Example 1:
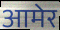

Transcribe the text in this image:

आमेर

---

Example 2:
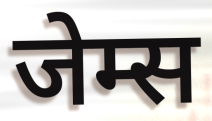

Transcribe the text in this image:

जेम्स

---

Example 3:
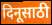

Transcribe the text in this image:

दिनूसाठी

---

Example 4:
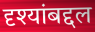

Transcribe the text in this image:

दृश्यांबद्दल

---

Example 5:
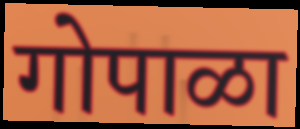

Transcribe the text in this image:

गोपाळा